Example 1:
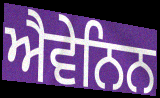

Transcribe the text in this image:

ਐਵੇਨਿਨ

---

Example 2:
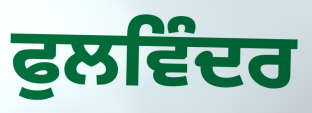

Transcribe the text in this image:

ਫੁਲਵਿੰਦਰ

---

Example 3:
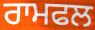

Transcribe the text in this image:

ਰਾਮਫਲ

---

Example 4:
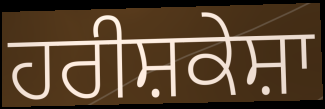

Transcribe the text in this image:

ਹਰੀਸ਼ਕੇਸ਼ਾ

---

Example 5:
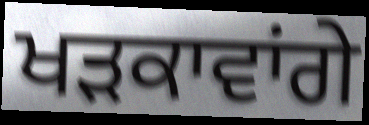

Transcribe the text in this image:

ਖੜਕਾਵਾਂਗੇ